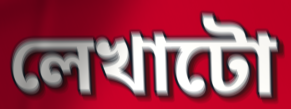
লেখাটো